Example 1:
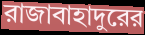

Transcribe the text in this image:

রাজাবাহাদুরের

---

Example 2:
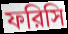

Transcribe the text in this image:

ফরিসি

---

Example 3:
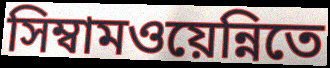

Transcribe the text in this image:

সিম্বামওয়েন্নিতে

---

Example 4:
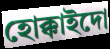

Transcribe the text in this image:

হোক্কাইদো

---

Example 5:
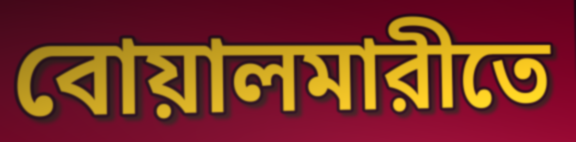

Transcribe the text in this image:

বোয়ালমারীতে